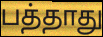
பத்தாது